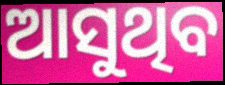
ଆସୁଥିବ